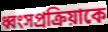
ধ্বংসপ্রক্রিয়াকে